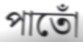
পাতোঁ